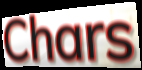
Chars